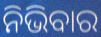
ନିଭିବାର